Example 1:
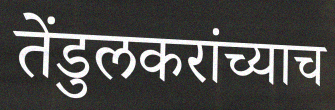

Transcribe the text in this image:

तेंडुलकरांच्याच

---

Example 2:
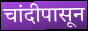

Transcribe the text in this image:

चांदीपासून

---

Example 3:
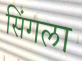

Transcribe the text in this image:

सिंगला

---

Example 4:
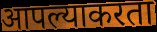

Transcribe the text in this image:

आपल्याकरता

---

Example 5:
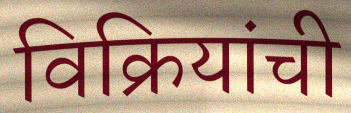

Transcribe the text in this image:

विक्रियांची